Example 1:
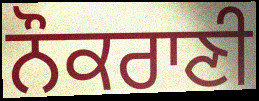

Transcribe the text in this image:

ਨੌਕਰਾਣੀ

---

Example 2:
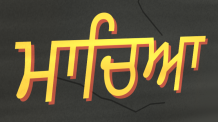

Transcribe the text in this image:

ਮਾਚਿਆ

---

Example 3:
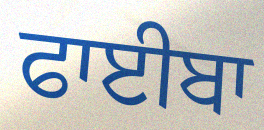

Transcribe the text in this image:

ਫਾਈਬਾ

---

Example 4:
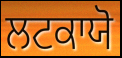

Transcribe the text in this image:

ਲਟਕਾਯੋ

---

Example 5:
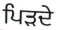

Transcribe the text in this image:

ਪਿੜਦੇ